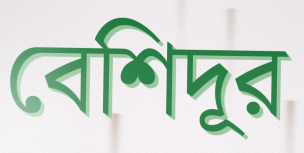
বেশিদূর